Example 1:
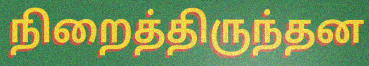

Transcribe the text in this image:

நிறைத்திருந்தன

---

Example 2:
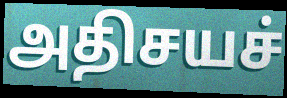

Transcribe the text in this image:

அதிசயச்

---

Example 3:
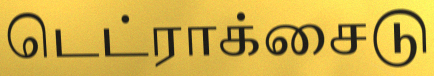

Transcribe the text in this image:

டெட்ராக்சைடு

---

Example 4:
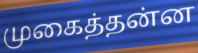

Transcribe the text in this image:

முகைத்தன்ன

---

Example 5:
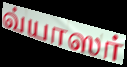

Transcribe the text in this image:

வ்யாஸர்